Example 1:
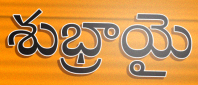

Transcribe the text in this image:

శుభ్రాయై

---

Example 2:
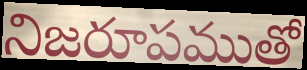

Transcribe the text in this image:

నిజరూపముతో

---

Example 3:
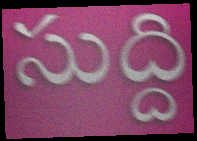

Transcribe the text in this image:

సుద్ది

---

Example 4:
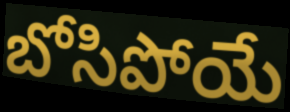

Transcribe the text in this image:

బోసిపోయే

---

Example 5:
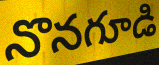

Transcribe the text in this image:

నొనగూడి